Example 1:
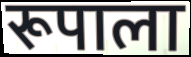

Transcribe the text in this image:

रूपाला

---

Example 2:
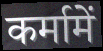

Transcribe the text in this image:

कर्मामें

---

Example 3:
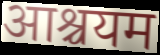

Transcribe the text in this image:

आश्चयम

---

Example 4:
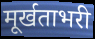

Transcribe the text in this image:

मूर्खताभरी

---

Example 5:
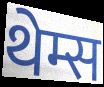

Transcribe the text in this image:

थेम्स